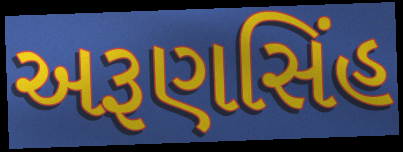
અરૂણસિંહ